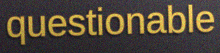
questionable